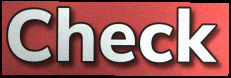
Check